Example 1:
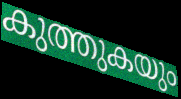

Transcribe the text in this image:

കുത്തുകയും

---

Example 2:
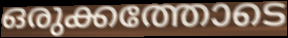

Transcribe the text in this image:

ഒരുക്കത്തോടെ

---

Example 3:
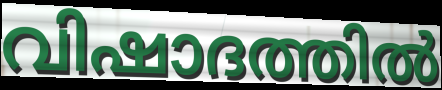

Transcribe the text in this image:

വിഷാദത്തിൽ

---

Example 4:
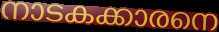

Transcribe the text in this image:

നാടകക്കാരനെ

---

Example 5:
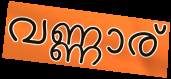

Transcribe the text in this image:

വണ്ണാര്